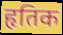
हृतिक